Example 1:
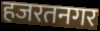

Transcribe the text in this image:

हजरतनगर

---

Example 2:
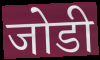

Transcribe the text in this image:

जोडी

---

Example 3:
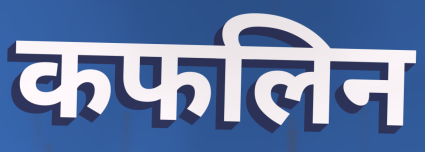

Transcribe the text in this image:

कफलिन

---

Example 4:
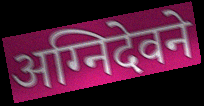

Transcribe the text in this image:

अग्निदेवने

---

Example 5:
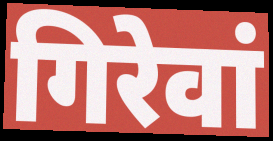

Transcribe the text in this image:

गिरेवां